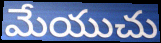
మేయుచు